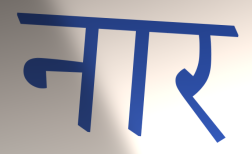
नार